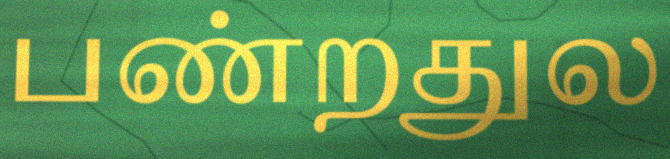
பண்றதுல